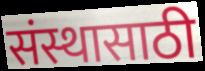
संस्थासाठी